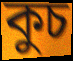
কুচ